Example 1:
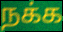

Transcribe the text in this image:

நக்க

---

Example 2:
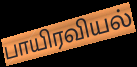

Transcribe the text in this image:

பாயிரவியல்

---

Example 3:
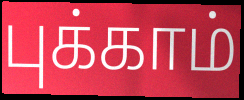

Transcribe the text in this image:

புக்காம்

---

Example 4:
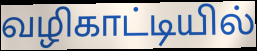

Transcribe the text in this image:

வழிகாட்டியில்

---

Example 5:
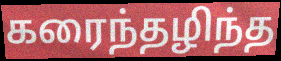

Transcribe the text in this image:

கரைந்தழிந்த